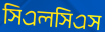
সিএলসিএস